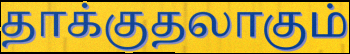
தாக்குதலாகும்